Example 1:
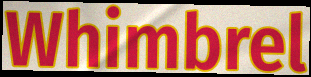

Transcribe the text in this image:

Whimbrel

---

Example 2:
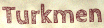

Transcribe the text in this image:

Turkmen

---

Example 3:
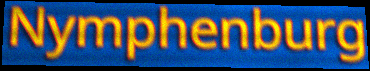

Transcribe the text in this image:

Nymphenburg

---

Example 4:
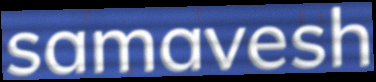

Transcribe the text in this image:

samavesh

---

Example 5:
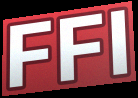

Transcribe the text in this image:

FFI